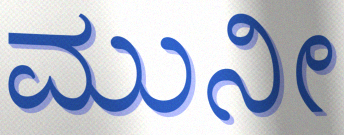
ಮುನೀ